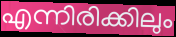
എന്നിരിക്കിലും